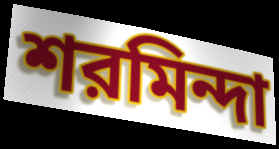
শরমিন্দা